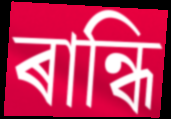
ৰান্ধি